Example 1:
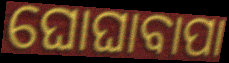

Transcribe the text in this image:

ଘୋଘାବାପା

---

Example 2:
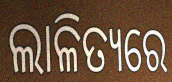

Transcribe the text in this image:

ଲାଳିତ୍ୟରେ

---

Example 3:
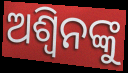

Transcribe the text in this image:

ଅଶ୍ବିନଙ୍କୁ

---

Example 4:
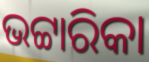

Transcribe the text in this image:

ଭଟ୍ଟାରିକା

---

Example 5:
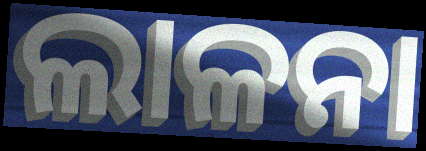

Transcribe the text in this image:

ଲାଳନା